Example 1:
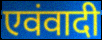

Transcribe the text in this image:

एवंवादी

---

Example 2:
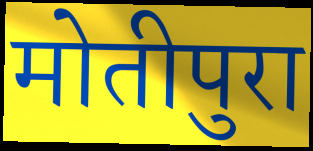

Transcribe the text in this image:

मोतीपुरा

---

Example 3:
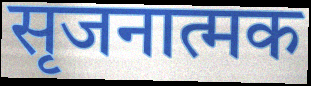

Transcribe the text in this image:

सृजनात्मक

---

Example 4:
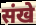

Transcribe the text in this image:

संखे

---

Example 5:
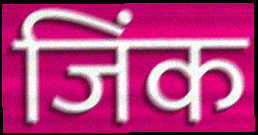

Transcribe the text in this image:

जिंक